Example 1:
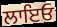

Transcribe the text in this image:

ਲਾਇਓ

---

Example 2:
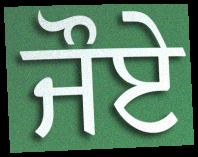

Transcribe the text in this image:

ਜੌਏ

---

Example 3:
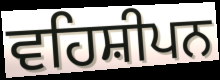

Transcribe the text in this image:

ਵਹਿਸ਼ੀਪਨ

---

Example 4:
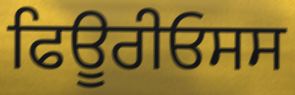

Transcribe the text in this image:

ਫਿਊਰੀਓਸਸ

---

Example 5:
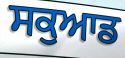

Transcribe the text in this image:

ਸਕੁਆਡ